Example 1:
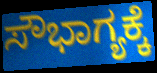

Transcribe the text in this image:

ಸೌಭಾಗ್ಯಕ್ಕೆ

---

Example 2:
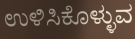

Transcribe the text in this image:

ಉಳಿಸಿಕೊಳ್ಳುವ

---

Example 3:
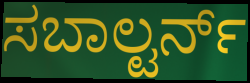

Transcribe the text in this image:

ಸಬಾಲ್ಟರ್ನ್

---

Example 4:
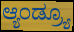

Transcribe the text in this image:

ಆ್ಯಂಡ್ರ್ಯೂ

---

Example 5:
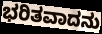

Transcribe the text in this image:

ಭರಿತವಾದನು